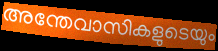
അന്തേവാസികളുടെയും